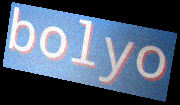
bolyo